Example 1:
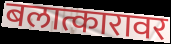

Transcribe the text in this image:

बलात्कारावर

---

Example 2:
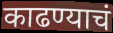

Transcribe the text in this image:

काढण्याचं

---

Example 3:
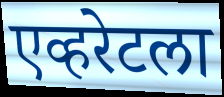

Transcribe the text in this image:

एव्हरेटला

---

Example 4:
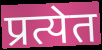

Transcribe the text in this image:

प्रत्येत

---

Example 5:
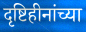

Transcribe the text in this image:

दृष्टिहीनांच्या